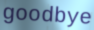
goodbye